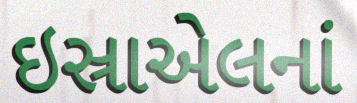
ઇસ્રાએલનાં